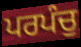
ਪਰਪੰਚੁ